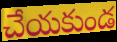
చేయకుండ